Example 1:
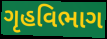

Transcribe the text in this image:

ગૃહવિભાગ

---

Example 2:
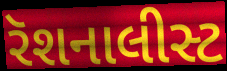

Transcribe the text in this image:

રૅશનાલીસ્ટ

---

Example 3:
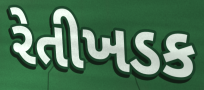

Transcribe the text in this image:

રેતીખડક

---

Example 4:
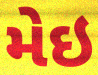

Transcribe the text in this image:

મેઇ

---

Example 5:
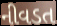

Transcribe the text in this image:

નીવડત